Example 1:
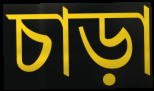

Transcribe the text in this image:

চাড়া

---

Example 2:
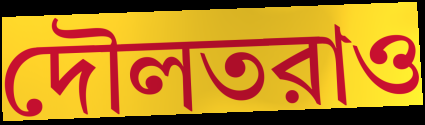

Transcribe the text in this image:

দৌলতরাও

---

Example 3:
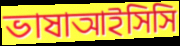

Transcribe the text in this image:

ভাষাআইসিসি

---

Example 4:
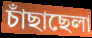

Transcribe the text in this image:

চাঁছাছেলা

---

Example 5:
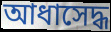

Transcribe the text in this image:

আধাসেদ্ধ